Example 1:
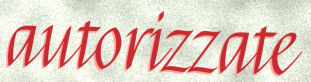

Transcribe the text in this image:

autorizzate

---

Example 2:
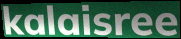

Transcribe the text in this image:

kalaisree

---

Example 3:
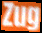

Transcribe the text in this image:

Zug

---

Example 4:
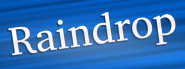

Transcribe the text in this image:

Raindrop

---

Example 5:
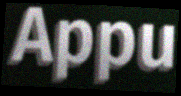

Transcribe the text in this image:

Appu